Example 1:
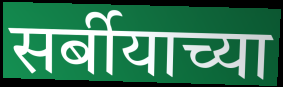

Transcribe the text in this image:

सर्बीयाच्या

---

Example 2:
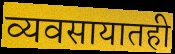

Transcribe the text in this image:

व्यवसायातही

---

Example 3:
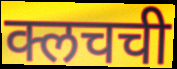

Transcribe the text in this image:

क्लचची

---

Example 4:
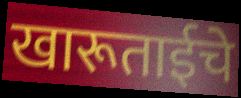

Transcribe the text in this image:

खारूताईचे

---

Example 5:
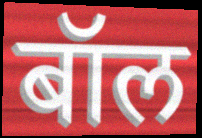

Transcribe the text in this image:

बॉल